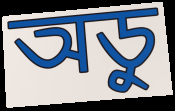
অডু